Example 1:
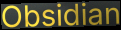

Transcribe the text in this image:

Obsidian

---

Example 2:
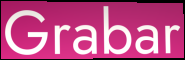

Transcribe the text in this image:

Grabar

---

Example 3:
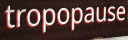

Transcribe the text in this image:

tropopause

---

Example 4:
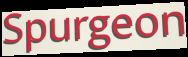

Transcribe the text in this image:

Spurgeon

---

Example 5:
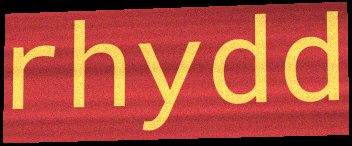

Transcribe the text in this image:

rhydd